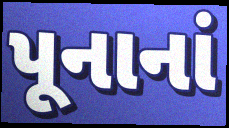
પૂનાનાં